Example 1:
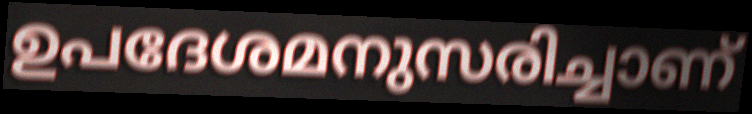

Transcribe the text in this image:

ഉപദേശമനുസരിച്ചാണ്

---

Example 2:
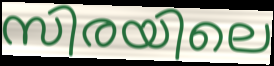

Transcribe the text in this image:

സിരയിലെ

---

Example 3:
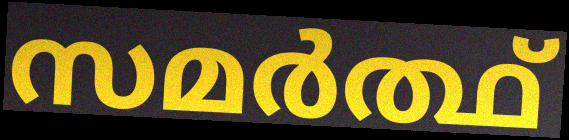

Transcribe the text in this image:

സമർത്ഥ്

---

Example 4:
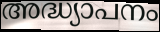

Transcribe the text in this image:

അദ്ധ്യാപനം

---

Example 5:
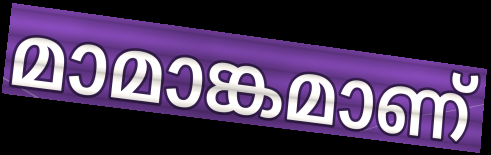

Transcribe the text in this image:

മാമാങ്കമാണ്